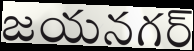
జయనగర్